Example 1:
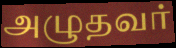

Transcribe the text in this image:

அழுதவர்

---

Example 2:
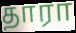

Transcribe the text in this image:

தாரா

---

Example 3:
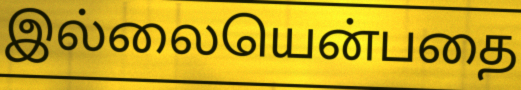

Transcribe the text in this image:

இல்லையென்பதை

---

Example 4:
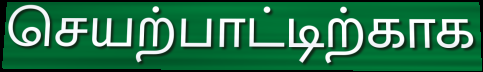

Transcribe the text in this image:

செயற்பாட்டிற்காக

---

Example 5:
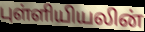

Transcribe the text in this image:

புள்ளியியலின்